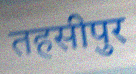
तहसीपुर